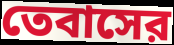
তেবাসের